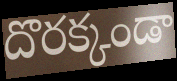
దొరక్కండా